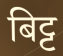
बिट्ट